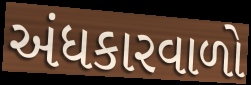
અંધકારવાળો